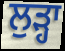
ਲੁੜ੍ਹਾ